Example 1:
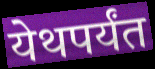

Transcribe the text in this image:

येथपर्यंत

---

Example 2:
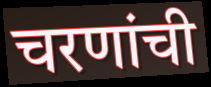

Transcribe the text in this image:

चरणांची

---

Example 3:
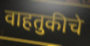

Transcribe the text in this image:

वाहतुकीचे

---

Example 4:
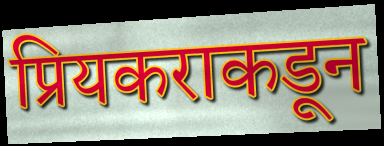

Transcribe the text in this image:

प्रियकराकडून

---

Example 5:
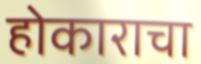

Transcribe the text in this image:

होकाराचा